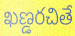
ఖణ్డరచితే